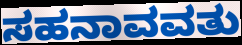
ಸಹನಾವವತು